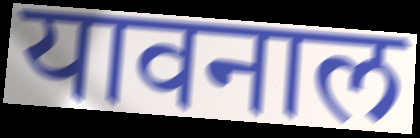
यावनाल